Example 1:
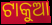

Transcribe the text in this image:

ଟାକୁଆ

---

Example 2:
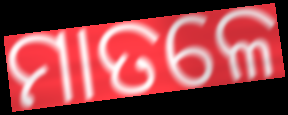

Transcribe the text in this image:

ମାତଳେ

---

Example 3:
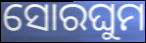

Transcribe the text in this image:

ସୋରଘୁମ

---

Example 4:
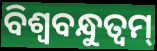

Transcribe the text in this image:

ବିଶ୍ଵବନ୍ଧୁତ୍ଵମ୍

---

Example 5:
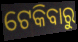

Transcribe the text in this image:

ଟେକିବାରୁ